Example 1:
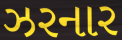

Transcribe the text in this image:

ઝરનાર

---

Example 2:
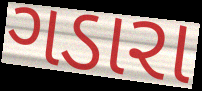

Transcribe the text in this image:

ગડારા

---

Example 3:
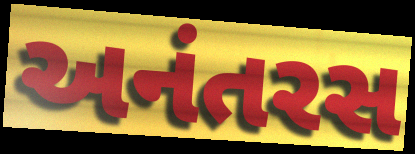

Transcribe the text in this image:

અનંતરસ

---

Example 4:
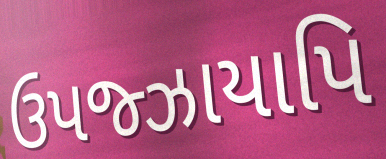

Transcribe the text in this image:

ઉપજ્ઝાયાપિ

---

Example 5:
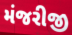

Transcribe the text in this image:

મંજરીજી